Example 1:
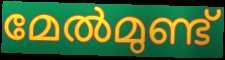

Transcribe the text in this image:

മേൽമുണ്ട്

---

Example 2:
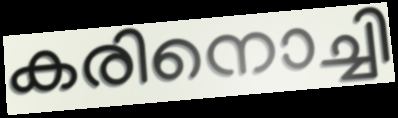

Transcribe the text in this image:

കരിനൊച്ചി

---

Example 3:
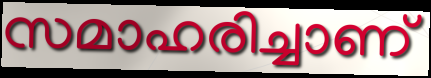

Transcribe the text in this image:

സമാഹരിച്ചാണ്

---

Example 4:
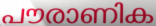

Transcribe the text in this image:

പൗരാണിക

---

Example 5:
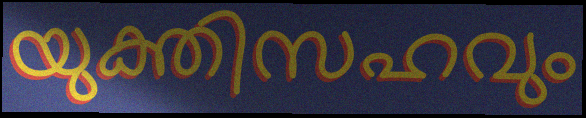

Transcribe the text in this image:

യുക്തിസഹവും